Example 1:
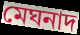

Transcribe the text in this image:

মেঘনাদ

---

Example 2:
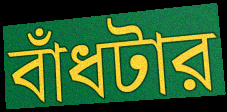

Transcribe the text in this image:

বাঁধটার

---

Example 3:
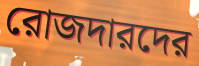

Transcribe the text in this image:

রোজদারদের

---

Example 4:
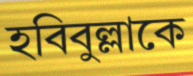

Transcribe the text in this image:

হবিবুল্লাকে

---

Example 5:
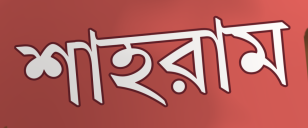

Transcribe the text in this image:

শাহরাম